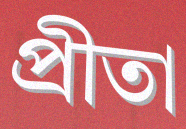
প্রীতা